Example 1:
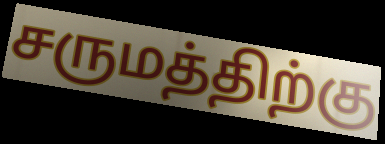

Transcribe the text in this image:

சருமத்திற்கு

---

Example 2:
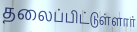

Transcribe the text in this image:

தலைப்பிட்டுள்ளார்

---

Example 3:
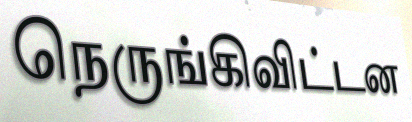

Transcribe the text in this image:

நெருங்கிவிட்டன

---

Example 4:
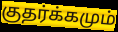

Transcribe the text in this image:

குதர்க்கமும்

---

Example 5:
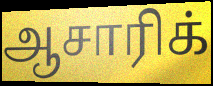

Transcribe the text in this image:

ஆசாரிக்